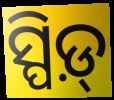
ସ୍ପିଡ଼୍